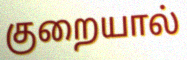
குறையால்